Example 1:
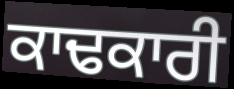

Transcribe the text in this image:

ਕਾਢਕਾਰੀ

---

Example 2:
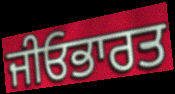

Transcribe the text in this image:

ਜੀਓਭਾਰਤ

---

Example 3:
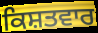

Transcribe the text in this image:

ਕਿਸ਼ਤਵਾਰ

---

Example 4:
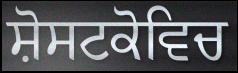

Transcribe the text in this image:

ਸ਼ੋਸਟਕੋਵਿਚ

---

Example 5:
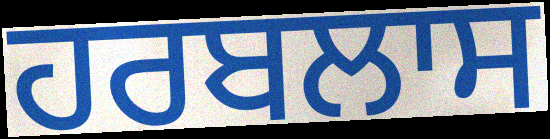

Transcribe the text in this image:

ਹਰਬਲਾਸ